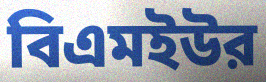
বিএমইউর